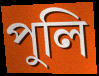
পুলি